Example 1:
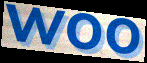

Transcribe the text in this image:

woo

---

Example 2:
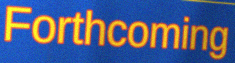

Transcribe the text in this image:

Forthcoming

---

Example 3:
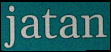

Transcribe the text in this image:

jatan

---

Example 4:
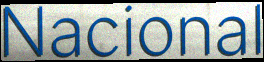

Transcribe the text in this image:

Nacional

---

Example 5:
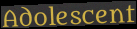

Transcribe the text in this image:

Adolescent